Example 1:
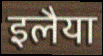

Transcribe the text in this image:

इलैया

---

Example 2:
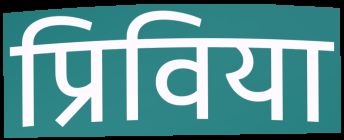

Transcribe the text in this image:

प्रिविया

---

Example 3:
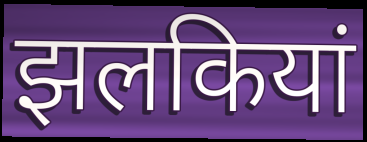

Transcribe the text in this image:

झलकियां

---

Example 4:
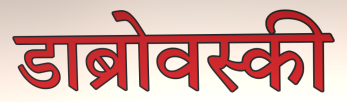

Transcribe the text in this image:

डाब्रोवस्की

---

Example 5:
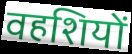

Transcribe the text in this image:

वहशियों